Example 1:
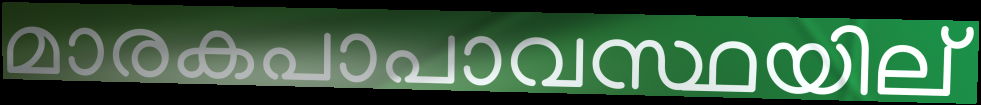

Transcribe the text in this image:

മാരകപാപാവസ്ഥയില്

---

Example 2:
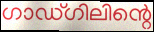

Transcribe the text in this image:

ഗാഡ്ഗിലിന്റെ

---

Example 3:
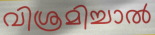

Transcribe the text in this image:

വിശ്രമിച്ചാൽ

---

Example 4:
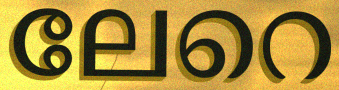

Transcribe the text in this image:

ലേറെ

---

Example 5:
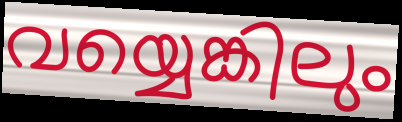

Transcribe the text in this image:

വയ്യെങ്കിലും